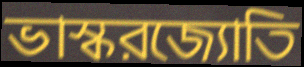
ভাস্করজ্যোতি